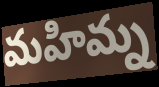
మహిమ్న